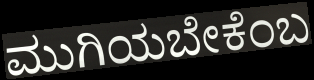
ಮುಗಿಯಬೇಕೆಂಬ